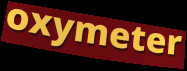
oxymeter